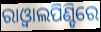
ରାଓ୍ଵାଲପିଣ୍ଡିରେ